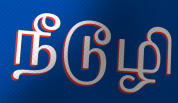
நீடூழி